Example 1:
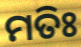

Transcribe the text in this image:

ମତିଃ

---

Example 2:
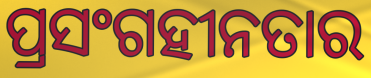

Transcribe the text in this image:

ପ୍ରସଂଗହୀନତାର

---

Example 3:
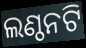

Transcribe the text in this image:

ଲଣ୍ଠନଟି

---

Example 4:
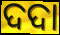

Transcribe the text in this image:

ଦଦା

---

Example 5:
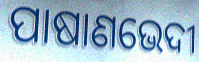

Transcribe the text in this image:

ପାଷାଣଭେଦୀ